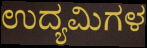
ಉದ್ಯಮಿಗಳ